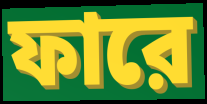
ফারে